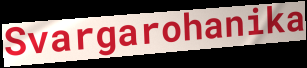
Svargarohanika